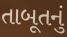
તાબૂતનું